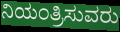
ನಿಯಂತ್ರಿಸುವರು